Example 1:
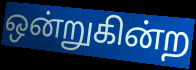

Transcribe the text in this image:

ஒன்றுகின்ற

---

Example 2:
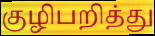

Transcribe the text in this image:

குழிபறித்து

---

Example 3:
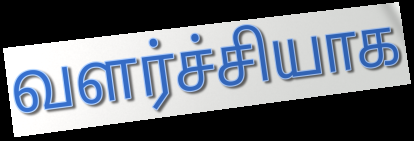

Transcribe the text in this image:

வளர்ச்சியாக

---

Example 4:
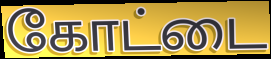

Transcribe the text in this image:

கோட்டை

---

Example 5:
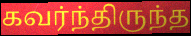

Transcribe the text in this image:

கவர்ந்திருந்த